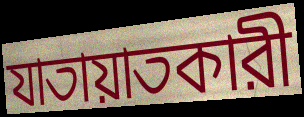
যাতায়াতকারী